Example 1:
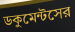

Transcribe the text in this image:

ডকুমেন্টসের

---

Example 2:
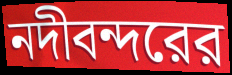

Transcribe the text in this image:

নদীবন্দরের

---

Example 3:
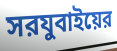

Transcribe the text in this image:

সরযুবাইয়ের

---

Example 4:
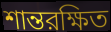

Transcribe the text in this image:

শান্তরক্ষিত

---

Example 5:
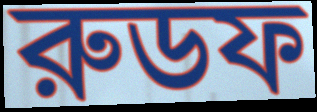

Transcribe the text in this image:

রুডফ